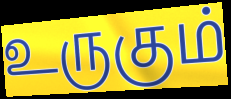
உருகும்